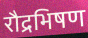
रौद्रभिषण